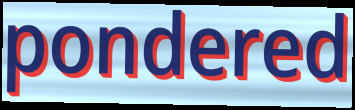
pondered